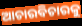
ଆଚାରବିଚାରକୁ